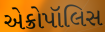
એક્રોપૉલિસ